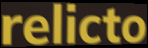
relicto